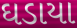
ઘડાયા